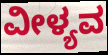
ವೀಳ್ಯವ